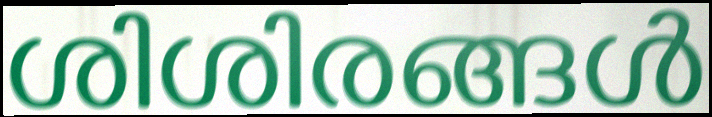
ശിശിരങ്ങൾ